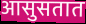
आसुसतात